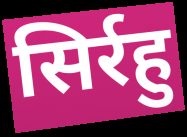
सिर्रहु